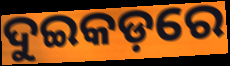
ଦୁଇକଡ଼ରେ